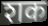
शक